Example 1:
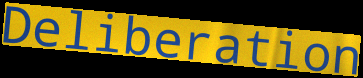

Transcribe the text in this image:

Deliberation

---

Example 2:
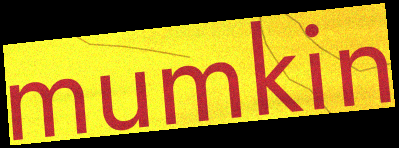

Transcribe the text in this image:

mumkin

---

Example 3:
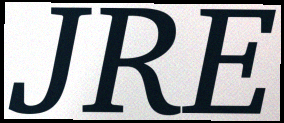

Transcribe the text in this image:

JRE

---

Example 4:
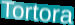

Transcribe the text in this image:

Tortora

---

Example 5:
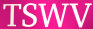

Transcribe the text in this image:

TSWV